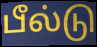
பீல்டு